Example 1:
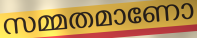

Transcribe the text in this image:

സമ്മതമാണോ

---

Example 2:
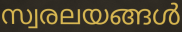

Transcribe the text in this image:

സ്വരലയങ്ങൾ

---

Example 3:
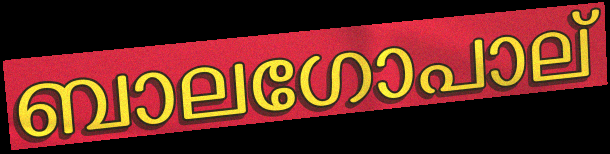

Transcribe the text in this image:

ബാലഗോപാല്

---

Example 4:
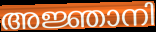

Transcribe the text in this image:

അജ്ഞാനി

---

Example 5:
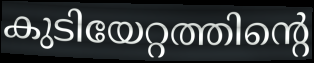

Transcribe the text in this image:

കുടിയേറ്റത്തിന്റെ